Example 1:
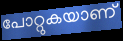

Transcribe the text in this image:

പോറ്റുകയാണ്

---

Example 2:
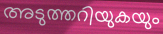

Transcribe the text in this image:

അടുത്തറിയുകയും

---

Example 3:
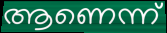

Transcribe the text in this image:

ആണെന്ന്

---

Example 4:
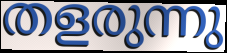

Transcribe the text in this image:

തളരുന്നു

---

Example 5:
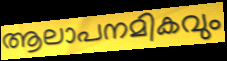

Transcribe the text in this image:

ആലാപനമികവും